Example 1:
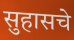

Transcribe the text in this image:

सुहासचे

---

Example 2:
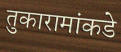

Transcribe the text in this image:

तुकारामांकडे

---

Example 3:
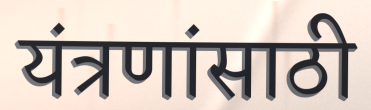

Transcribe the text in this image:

यंत्रणांसाठी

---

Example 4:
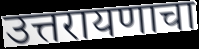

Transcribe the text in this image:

उत्तरायणाचा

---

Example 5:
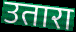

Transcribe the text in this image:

उतारा